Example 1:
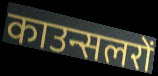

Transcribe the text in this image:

काउन्सलरों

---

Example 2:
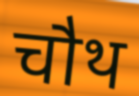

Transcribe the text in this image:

चौथ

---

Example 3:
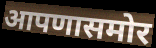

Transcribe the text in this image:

आपणासमोर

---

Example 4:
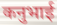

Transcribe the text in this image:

कनुभाई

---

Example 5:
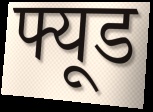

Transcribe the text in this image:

फ्यूड